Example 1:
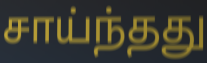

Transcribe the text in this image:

சாய்ந்தது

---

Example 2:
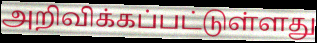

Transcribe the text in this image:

அறிவிக்கப்பட்டுள்ளது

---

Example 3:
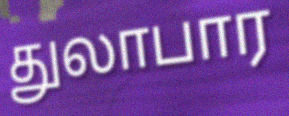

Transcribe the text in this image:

துலாபார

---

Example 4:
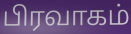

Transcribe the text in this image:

பிரவாகம்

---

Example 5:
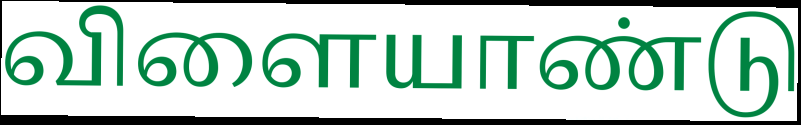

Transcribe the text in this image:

விளையாண்டு